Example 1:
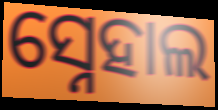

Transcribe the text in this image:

ସ୍ନେହାଲ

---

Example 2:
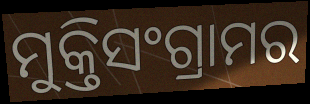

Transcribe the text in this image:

ମୁକ୍ତିସଂଗ୍ରାମର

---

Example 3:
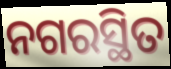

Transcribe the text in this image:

ନଗରସ୍ଥିତ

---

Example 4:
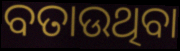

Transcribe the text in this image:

ବତାଉଥିବା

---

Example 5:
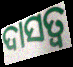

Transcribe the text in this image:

ଦାସତ୍ବ